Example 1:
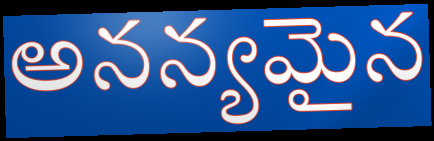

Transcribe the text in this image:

అనన్యమైన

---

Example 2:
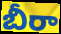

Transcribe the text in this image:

బీరా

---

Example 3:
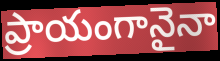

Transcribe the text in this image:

ప్రాయంగానైనా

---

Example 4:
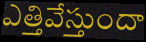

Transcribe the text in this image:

ఎత్తివేస్తుందా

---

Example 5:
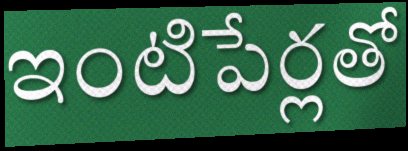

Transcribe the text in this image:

ఇంటిపేర్లతో